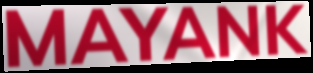
MAYANK